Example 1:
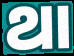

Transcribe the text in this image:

ଥା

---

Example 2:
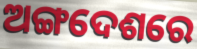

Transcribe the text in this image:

ଅଙ୍ଗଦେଶରେ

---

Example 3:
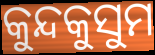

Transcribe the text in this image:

କୁନ୍ଦକୁସୁମ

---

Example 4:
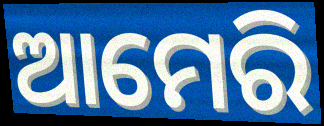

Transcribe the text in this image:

ଆମେରି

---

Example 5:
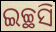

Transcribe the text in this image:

ଇଚ୍ଛସି